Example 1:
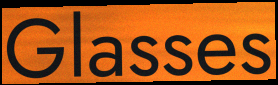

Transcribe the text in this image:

Glasses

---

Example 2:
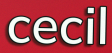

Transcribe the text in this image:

cecil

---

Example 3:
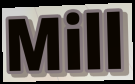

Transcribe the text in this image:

Mill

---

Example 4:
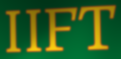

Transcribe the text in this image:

IIFT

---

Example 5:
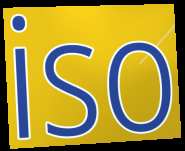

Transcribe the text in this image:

iso